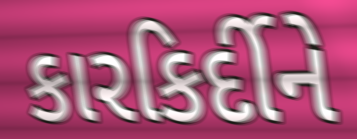
કારકિર્દીને